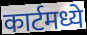
कार्टमध्ये